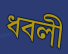
ধবলী